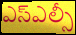
ఎస్ఎల్సీ